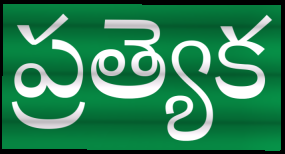
ప్రత్యెక